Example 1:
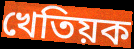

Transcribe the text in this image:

খেতিয়ক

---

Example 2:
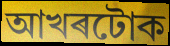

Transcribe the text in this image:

আখৰটোক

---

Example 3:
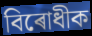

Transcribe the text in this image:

বিৰোধীক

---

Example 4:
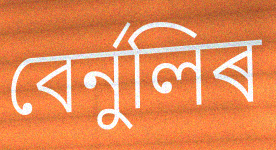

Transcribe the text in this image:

বেৰ্নুলিৰ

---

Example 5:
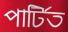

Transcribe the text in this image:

পাৰ্টিত